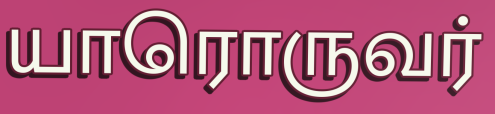
யாரொருவர்